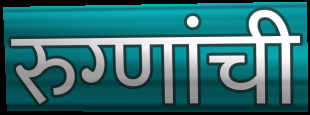
रुग्‍णांची